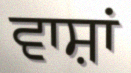
ਵਾਸ਼ਾਂ